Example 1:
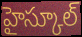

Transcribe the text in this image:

హైస్కూల్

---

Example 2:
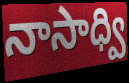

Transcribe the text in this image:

నాసాధ్వి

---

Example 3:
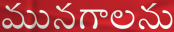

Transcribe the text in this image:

మునగాలను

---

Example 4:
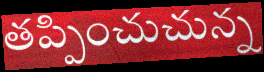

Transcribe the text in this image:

తప్పించుచున్న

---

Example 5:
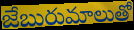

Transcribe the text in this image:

జేబురుమాలుతో